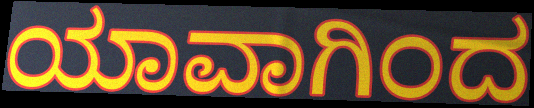
ಯಾವಾಗಿಂದ